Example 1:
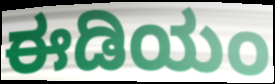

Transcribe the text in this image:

ಈಡಿಯಂ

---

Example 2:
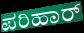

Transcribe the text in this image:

ಪರಿಹಾರ್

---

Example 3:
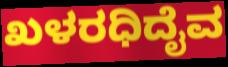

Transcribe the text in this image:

ಖಳರಧಿದೈವ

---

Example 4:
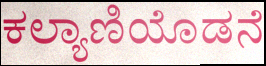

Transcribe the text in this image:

ಕಲ್ಯಾಣಿಯೊಡನೆ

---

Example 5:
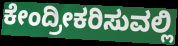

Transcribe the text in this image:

ಕೇಂದ್ರೀಕರಿಸುವಲ್ಲಿ